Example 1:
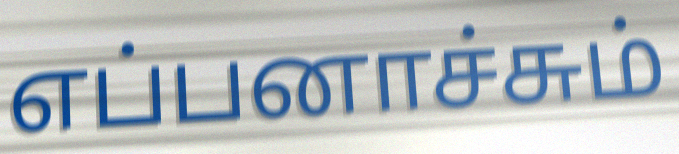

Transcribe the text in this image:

எப்பனாச்சும்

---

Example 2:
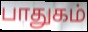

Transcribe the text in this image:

பாதுகம்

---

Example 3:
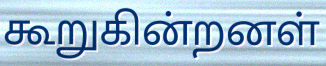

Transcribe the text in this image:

கூறுகின்றனள்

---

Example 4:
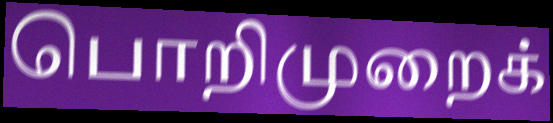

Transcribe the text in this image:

பொறிமுறைக்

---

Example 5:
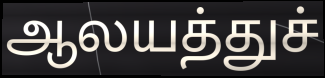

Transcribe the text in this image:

ஆலயத்துச்